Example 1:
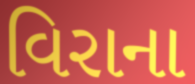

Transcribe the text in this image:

વિરાના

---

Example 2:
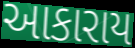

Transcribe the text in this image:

આકારાય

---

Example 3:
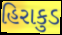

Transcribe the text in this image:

હિરાકુડ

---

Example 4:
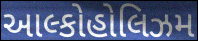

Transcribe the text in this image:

આલ્કોહોલિઝમ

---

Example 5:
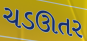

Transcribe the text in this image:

ચડઊતર